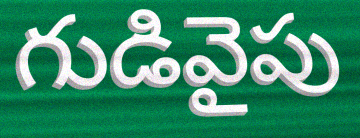
గుడివైపు